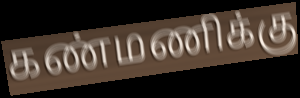
கண்மணிக்கு